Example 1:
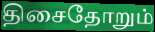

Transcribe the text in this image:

திசைதோறும்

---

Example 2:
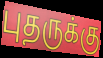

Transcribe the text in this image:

புதருக்கு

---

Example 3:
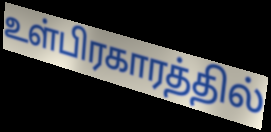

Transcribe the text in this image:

உள்பிரகாரத்தில்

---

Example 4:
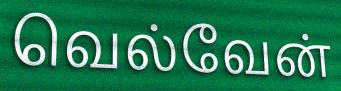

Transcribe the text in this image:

வெல்வேன்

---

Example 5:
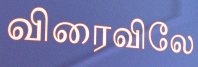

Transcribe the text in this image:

விரைவிலே